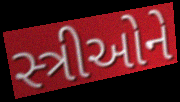
સ્ત્રીઓને